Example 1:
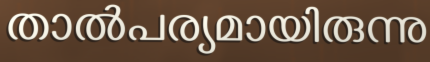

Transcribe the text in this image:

താൽപര്യമായിരുന്നു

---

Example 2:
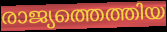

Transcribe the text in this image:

രാജ്യത്തെത്തിയ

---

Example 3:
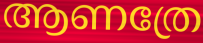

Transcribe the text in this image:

ആണത്രേ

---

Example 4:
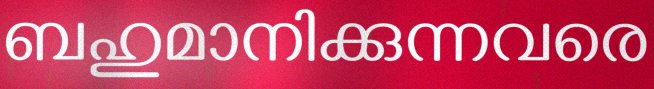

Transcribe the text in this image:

ബഹുമാനിക്കുന്നവരെ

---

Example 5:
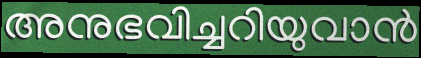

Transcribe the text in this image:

അനുഭവിച്ചറിയുവാൻ